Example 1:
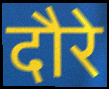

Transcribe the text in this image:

दौरे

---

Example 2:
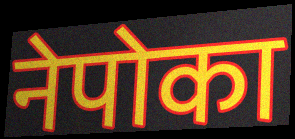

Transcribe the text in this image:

नेपोका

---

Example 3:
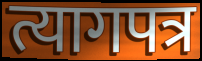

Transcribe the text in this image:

त्यागपत्र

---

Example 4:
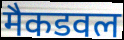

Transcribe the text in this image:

मैकडवल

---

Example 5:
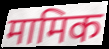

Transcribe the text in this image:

मामिक